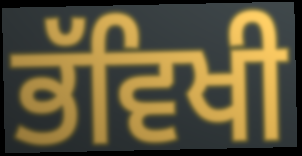
ਭੱਵਿਖੀ